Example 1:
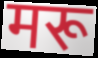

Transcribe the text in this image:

मरू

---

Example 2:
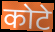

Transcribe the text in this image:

कोटे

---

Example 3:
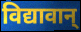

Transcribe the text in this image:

विद्यावान्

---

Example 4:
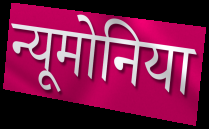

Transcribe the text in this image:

न्यूमोनिया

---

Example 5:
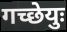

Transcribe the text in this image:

गच्छेयुः